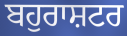
ਬਹੁਰਾਸ਼ਟਰ